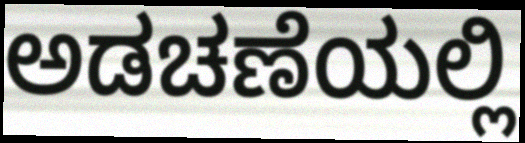
ಅಡಚಣೆಯಲ್ಲಿ